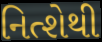
નિત્શેથી